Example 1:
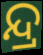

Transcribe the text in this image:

ନ୍ଦ୍ର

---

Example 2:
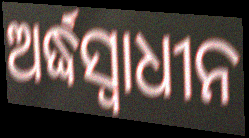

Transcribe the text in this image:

ଅର୍ଦ୍ଧସ୍ୱାଧୀନ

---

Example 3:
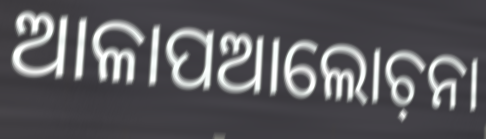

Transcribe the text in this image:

ଆଳାପଆଲୋଚ଼ନା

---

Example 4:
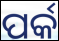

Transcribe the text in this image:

ପର୍କ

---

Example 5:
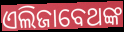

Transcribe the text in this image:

ଏଲିଜାବେଥଙ୍କ